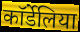
कॉर्डेलिया